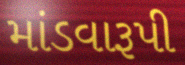
માંડવારૂપી